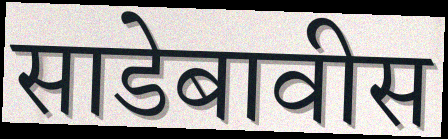
साडेबावीस